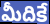
మీదికే